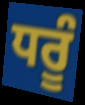
ਧਰੂੰ